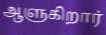
ஆளுகிறார்